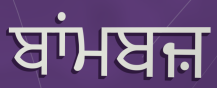
ਬਾਂਮਬਜ਼